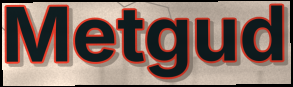
Metgud